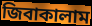
জিবাকালাম